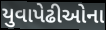
યુવાપેઢીઓના